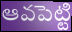
ఆవపెట్టి